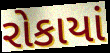
રોકાયાં